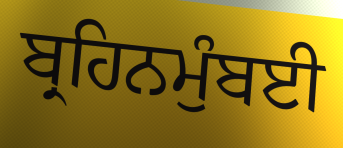
ਬ੍ਰਹਿਨਮੁੰਬਈ